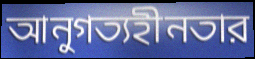
আনুগত্যহীনতার